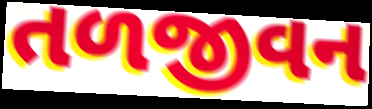
તળજીવન